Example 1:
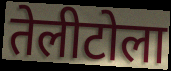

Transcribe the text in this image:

तेलीटोला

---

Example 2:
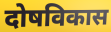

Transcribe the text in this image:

दोषविकास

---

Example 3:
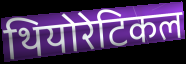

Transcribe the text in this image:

थियोरेटिकल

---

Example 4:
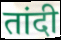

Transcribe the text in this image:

तांदी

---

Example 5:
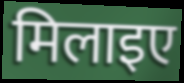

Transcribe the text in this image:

मिलाइए